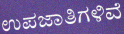
ಉಪಜಾತಿಗಳಿವೆ